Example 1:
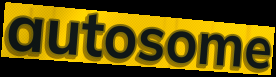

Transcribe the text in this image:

autosome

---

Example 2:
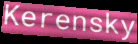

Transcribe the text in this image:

Kerensky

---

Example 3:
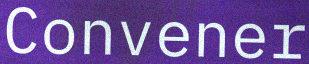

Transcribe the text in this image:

Convener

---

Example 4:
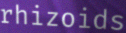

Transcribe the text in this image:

rhizoids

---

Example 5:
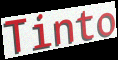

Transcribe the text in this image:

Tinto